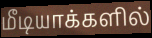
மீடியாக்களில்